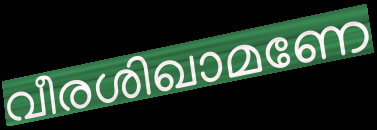
വീരശിഖാമണേ